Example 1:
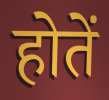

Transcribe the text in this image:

होतें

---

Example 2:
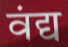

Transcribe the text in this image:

वंद्य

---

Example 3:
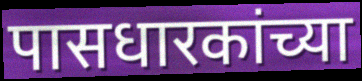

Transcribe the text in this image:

पासधारकांच्या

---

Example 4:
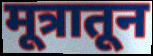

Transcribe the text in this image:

मूत्रातून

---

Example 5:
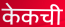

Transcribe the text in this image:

केकची